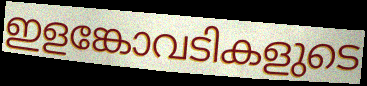
ഇളങ്കോവടികളുടെ